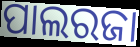
ପାଲରଜା